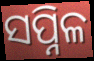
ସପ୍ନିଳ